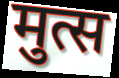
मुत्स